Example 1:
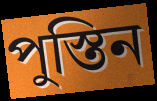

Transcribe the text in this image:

পুস্তিন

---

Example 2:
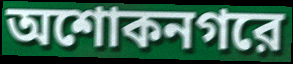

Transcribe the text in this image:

অশোকনগরে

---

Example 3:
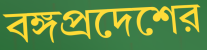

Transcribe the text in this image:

বঙ্গপ্রদেশের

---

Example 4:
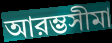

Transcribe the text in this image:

আরম্ভসীমা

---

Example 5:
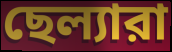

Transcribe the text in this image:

ছেল্যারা